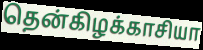
தென்கிழக்காசியா